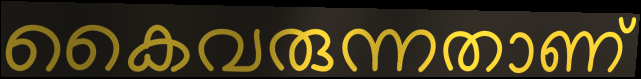
കൈവരുന്നതാണ്